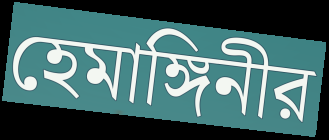
হেমাঙ্গিনীর